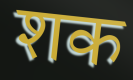
शक